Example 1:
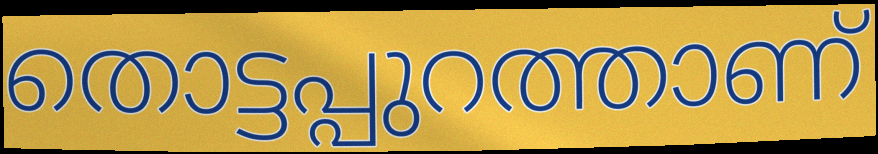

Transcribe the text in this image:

തൊട്ടപ്പുറത്താണ്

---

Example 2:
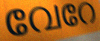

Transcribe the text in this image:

വേറേ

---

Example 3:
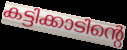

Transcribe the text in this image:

കട്ടിക്കാടിന്റെ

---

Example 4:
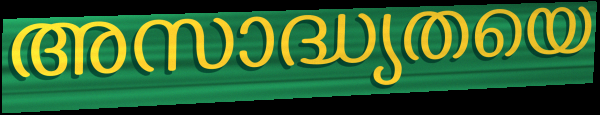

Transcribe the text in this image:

അസാദ്ധ്യതയെ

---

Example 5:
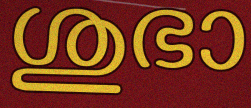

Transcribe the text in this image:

ശുഭാ